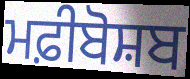
ਮਫ਼ੀਬੋਸ਼ਬ